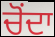
ਚੋਂਦਾ